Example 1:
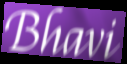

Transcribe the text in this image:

Bhavi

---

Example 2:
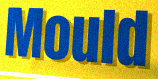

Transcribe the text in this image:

Mould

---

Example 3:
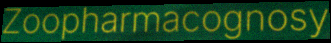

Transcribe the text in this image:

Zoopharmacognosy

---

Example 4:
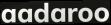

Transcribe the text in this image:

aadaroo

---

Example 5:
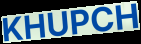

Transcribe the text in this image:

KHUPCH